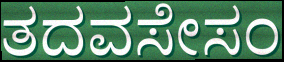
ತದವಸೇಸಂ